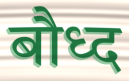
बौध्द